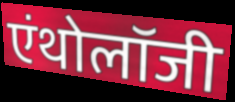
एंथोलॉजी